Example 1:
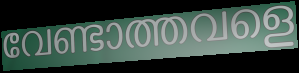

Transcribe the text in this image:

വേണ്ടാത്തവളെ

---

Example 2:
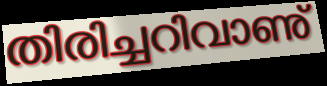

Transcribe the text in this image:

തിരിച്ചറിവാണു്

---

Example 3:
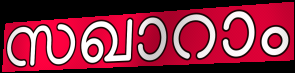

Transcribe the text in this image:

സഖാറാം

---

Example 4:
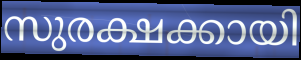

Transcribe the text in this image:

സുരക്ഷക്കായി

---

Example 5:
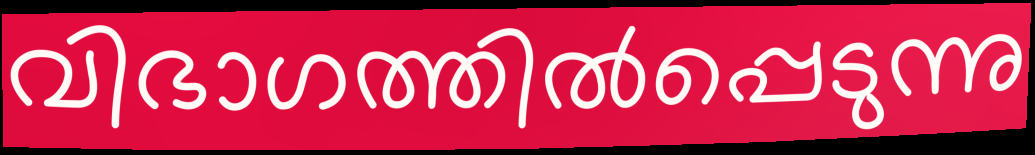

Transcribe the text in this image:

വിഭാഗത്തിൽപ്പെടുന്നു